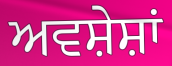
ਅਵਸ਼ੇਸ਼ਾਂ